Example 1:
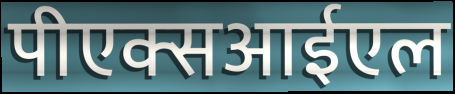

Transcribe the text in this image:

पीएक्सआईएल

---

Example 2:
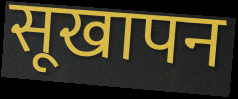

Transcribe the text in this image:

सूखापन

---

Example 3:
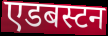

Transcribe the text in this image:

एडबस्टन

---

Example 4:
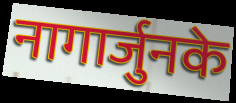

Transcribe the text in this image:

नागार्जुनके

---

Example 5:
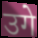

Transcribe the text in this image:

उगे